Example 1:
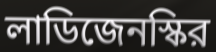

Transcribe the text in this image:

লাডিজেনস্কির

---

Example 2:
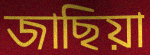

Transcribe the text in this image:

জাছিয়া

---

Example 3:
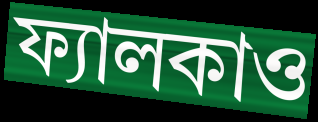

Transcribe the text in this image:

ফ্যালকাও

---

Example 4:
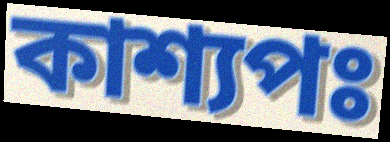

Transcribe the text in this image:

কাশ্যপঃ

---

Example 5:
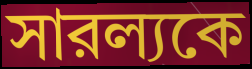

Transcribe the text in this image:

সারল্যকে